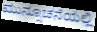
ಮುನ್ಸೂಚನೆಯಲ್ಲಿ